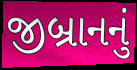
જીબ્રાનનું